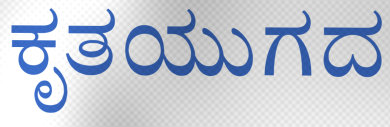
ಕೃತಯುಗದ